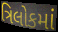
ત્રિલોકમાં